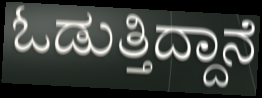
ಓಡುತ್ತಿದ್ದಾನೆ